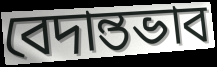
বেদান্তভাব